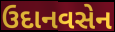
ઉદાનવસેન